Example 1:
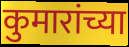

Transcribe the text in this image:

कुमारांच्या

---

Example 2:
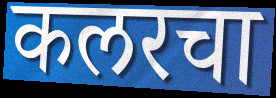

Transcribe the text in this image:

कलरचा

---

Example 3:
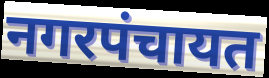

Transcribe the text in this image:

नगरपंचायत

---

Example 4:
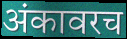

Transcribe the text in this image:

अंकावरच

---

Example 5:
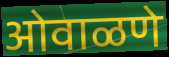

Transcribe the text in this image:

ओवाळणे